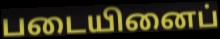
படையினைப்